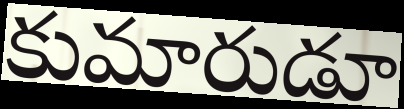
కుమారుడూ